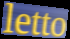
letto